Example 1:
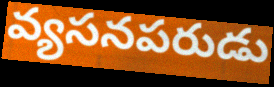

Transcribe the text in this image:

వ్యసనపరుడు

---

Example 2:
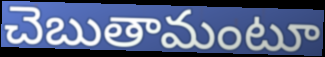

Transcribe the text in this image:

చెబుతామంటూ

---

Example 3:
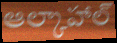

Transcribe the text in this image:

ఆల్కాహాల్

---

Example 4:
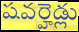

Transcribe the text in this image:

షవర్హెడ్లు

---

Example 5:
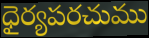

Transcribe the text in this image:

ధైర్యపరచుము